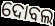
ଦୋବଲ